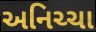
અનિચ્ચા